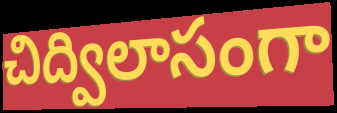
చిద్విలాసంగా